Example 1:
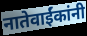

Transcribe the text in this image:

नातेवाईंकांनी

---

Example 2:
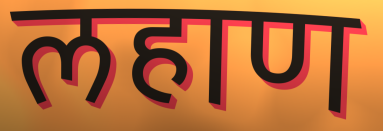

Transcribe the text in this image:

लहाण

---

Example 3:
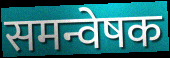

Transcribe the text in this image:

समन्वेषक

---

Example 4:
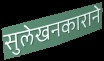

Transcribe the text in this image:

सुलेखनकाराने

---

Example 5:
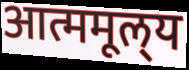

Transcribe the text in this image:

आत्ममूल्य